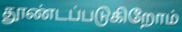
தூண்டப்படுகிறோம்